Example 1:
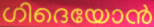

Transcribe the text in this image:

ഗിദെയോൻ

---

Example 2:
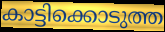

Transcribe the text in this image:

കാട്ടിക്കൊടുത്ത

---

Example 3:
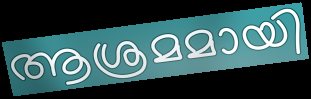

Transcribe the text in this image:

ആശ്രമമായി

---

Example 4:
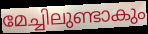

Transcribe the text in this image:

മേച്ചിലുണ്ടാകും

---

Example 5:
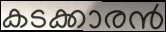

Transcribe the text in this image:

കടക്കാരൻ